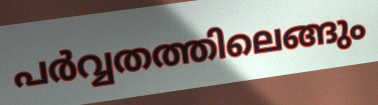
പർവ്വതത്തിലെങ്ങും